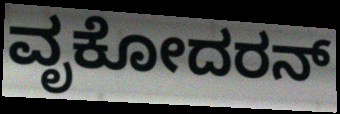
ವೃಕೋದರನ್